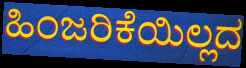
ಹಿಂಜರಿಕೆಯಿಲ್ಲದ